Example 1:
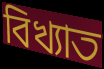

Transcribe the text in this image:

বিখ্যাত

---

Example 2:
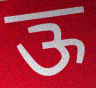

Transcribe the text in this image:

ক্ত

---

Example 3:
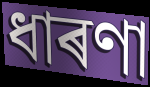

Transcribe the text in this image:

ধাৰণা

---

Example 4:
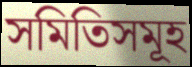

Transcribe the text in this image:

সমিতিসমূহ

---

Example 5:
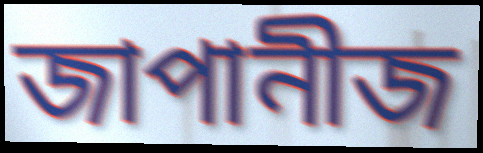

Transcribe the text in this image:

জাপানীজ